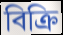
বিক্ৰি